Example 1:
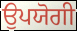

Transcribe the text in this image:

ਉਪਯੋਗੀ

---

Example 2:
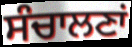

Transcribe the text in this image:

ਸੰਚਾਲਣਾਂ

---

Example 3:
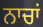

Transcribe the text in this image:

ਨਾਚਾਂ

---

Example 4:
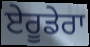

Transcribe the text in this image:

ਏਰੂਡੇਰਾ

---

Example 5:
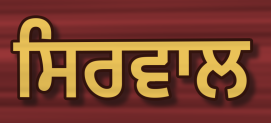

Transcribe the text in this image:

ਸਿਰਵਾਲ